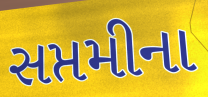
સપ્તમીના